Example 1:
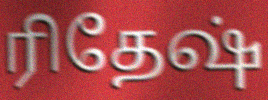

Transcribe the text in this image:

ரிதேஷ்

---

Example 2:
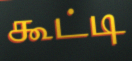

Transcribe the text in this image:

கூட்டி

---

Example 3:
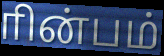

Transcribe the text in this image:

ரின்பம்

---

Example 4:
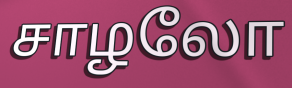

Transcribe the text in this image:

சாழலோ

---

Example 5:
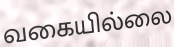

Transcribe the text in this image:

வகையில்லை